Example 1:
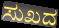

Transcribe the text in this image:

ಸುಖದ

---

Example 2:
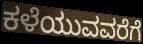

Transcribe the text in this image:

ಕಳೆಯುವವರೆಗೆ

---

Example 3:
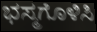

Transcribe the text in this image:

ಭಸ್ಮಗೊಳಿಸಿ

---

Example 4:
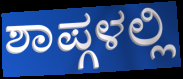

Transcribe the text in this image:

ಶಾಪ್ಗಳಲ್ಲಿ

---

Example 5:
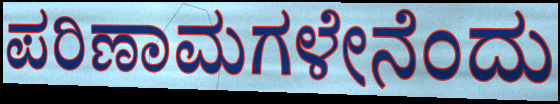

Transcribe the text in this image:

ಪರಿಣಾಮಗಳೇನೆಂದು